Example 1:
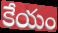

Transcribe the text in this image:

కేయం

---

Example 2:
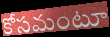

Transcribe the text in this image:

కోసమంటూ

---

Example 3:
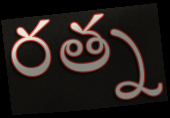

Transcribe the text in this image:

రత్న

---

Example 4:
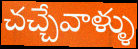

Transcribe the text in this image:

చచ్చేవాళ్ళు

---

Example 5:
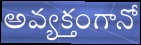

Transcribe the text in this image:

అవ్యక్తంగానో